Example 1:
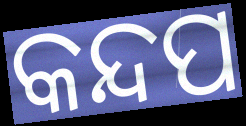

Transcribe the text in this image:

କନ୍ଦପ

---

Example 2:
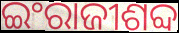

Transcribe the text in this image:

ଇଂରାଜୀଶବ୍ଦ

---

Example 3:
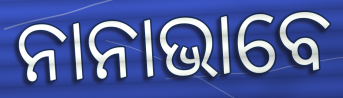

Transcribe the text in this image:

ନାନାଭାବେ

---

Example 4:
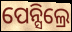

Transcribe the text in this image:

ପେନ୍ସିଲ୍ରେ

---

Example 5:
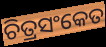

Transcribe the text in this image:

ଚିତ୍ରସଂକେତ